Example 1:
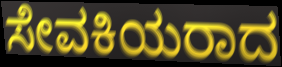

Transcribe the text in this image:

ಸೇವಕಿಯರಾದ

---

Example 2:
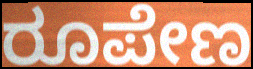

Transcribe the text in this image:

ರೂಪೇಣ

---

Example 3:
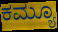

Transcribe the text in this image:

ಕಮ್ಯೂ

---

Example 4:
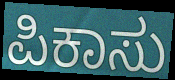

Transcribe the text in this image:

ಪಿಕಾಸು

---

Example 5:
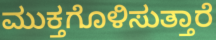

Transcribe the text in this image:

ಮುಕ್ತಗೊಳಿಸುತ್ತಾರೆ